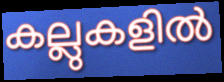
കല്ലുകളിൽ